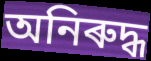
অনিৰুদ্ধ